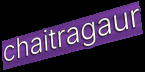
chaitragaur